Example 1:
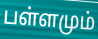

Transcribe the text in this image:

பள்ளமும்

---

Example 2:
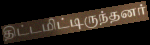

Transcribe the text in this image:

திட்டமிட்டிருந்தனர்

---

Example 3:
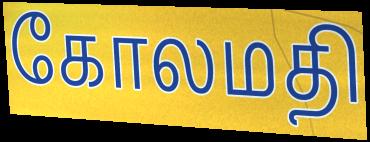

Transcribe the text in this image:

கோலமதி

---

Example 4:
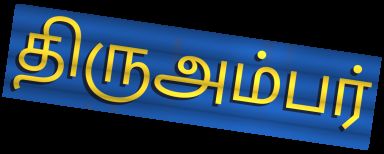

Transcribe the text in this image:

திருஅம்பர்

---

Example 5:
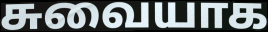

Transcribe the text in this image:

சுவையாக